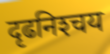
दृढनिश्‍चय